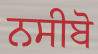
ਨਸੀਬੋ